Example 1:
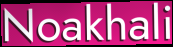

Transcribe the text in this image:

Noakhali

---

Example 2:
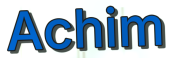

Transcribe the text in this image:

Achim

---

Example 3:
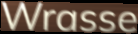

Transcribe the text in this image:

Wrasse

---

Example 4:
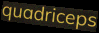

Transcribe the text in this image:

quadriceps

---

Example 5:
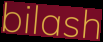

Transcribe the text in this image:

bilash